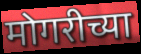
मोगरीच्या